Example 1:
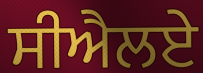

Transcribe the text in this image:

ਸੀਐਲਏ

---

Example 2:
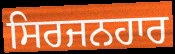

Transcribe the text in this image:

ਸਿਰਜਨਹਾਰ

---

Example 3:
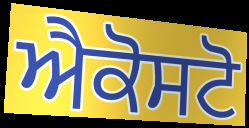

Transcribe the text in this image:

ਐਕੋਸਟੋ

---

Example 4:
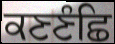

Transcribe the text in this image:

ਕਣਣੰਛਿ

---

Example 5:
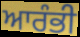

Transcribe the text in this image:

ਆਰੰਭੀ